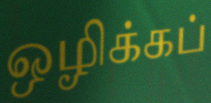
ஒழிக்கப்